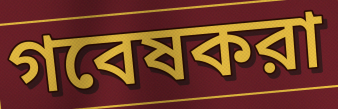
গবেষকরা